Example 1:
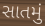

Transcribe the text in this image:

સાતમું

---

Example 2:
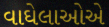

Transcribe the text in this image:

વાઘેલાઓએ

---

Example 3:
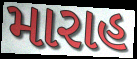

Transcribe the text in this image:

મારાહ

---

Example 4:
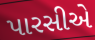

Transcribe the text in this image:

પારસીએ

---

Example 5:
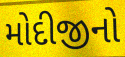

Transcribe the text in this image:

મોદીજીનો